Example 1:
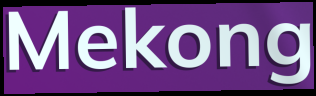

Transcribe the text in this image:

Mekong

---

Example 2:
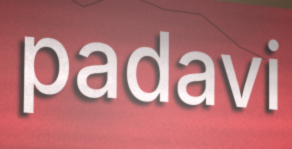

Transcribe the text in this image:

padavi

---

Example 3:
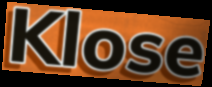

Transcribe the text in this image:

Klose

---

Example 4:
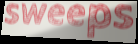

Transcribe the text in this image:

sweeps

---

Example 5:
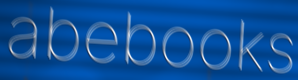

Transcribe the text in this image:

abebooks